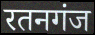
रतनगंज